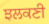
ਝਲਕਣੀ